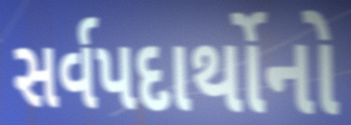
સર્વપદાર્થોનો